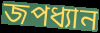
জপধ্যান